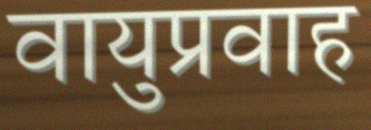
वायुप्रवाह